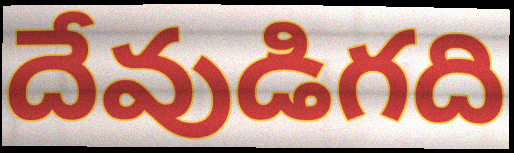
దేవుడిగది